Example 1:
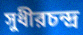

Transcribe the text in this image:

সুধীরচন্দ্র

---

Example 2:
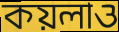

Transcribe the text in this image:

কয়লাও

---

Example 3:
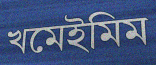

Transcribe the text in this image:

খমেইমিম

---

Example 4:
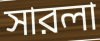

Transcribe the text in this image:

সারলা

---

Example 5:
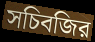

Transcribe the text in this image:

সচিবজির